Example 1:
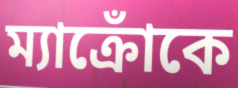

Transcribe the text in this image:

ম্যাক্রোঁকে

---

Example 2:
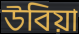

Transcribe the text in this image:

উবিয়া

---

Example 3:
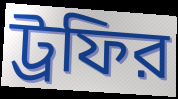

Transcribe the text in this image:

ট্রফির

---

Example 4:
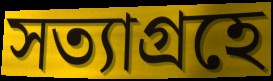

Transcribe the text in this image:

সত্যাগ্রহে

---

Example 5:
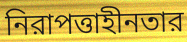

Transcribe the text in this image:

নিরাপত্তাহীনতার